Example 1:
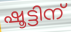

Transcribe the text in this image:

ഷൂട്ടിന്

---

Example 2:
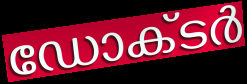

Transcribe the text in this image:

ഡോക്‌ടർ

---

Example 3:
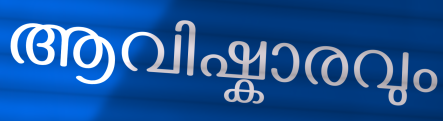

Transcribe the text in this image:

ആവിഷ്കാരവും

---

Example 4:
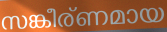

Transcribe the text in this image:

സങ്കീര്ണമായ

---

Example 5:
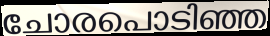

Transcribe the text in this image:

ചോരപൊടിഞ്ഞ